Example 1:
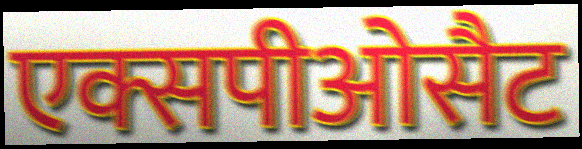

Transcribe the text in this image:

एक्सपीओसैट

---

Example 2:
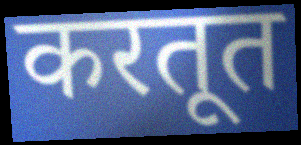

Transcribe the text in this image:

करतूत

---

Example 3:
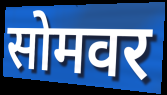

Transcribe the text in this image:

सोमवर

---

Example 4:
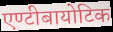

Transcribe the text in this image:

एण्टीबायोटिक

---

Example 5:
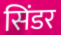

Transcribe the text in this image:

सिंडर